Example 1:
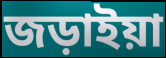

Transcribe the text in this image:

জড়াইয়া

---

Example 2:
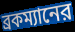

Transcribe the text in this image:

ব্রকম্যানের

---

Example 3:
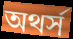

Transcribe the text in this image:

অথর্স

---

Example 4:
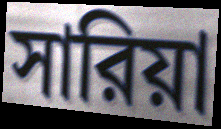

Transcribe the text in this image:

সারিয়া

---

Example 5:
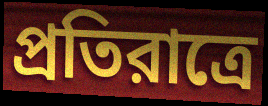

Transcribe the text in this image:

প্রতিরাত্রে